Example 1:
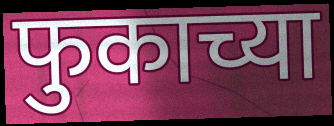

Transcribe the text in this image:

फुकाच्या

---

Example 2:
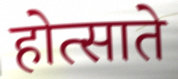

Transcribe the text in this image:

होत्साते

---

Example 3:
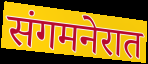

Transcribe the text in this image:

संगमनेरात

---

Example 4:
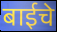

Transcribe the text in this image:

बाईचे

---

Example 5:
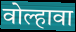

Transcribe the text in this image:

वोल्हावा